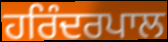
ਹਰਿੰਦਰਪਾਲ